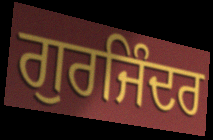
ਗੁਰਜਿੰਦਰ